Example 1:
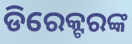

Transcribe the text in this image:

ଡିରେକ୍ଟରଙ୍କ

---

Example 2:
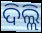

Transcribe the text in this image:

ଦିଲ୍ଲି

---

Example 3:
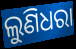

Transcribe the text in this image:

ଲୁଣିଧରା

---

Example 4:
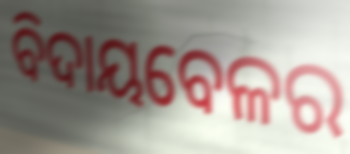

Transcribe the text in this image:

ବିଦାୟବେଳର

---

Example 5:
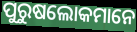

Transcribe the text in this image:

ପୁରୁଷଲୋକମାନେ